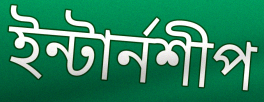
ইন্টার্নশীপ